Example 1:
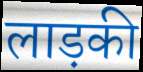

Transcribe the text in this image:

लाड़की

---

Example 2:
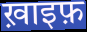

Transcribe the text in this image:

ख़ाइफ़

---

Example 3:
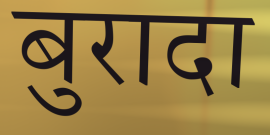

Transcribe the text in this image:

बुरादा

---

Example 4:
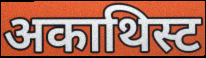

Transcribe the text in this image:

अकाथिस्ट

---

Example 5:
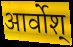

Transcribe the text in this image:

आर्वोश्